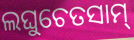
ଲଘୁଚେତସାମ୍